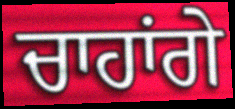
ਚਾਹਾਂਗੇ